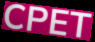
CPET